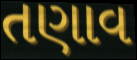
તણાવ